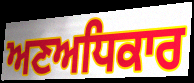
ਅਣਅਧਿਕਾਰ